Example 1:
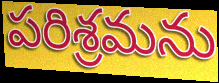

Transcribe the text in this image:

పరిశ్రమను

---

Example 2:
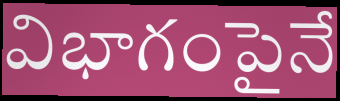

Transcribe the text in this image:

విభాగంపైనే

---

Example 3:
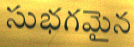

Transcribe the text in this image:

సుభగమైన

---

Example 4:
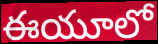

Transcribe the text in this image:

ఈయూలో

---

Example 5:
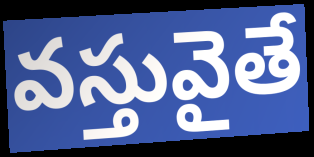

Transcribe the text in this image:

వస్తువైతే